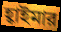
হ্বাইমার